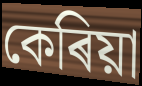
কেৰিয়া